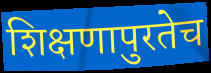
शिक्षणापुरतेच